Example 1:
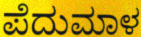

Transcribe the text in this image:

ಪೆದುಮಾಳ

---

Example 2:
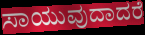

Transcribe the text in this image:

ಸಾಯುವುದಾದರೆ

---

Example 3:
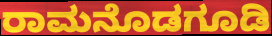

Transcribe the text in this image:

ರಾಮನೊಡಗೂಡಿ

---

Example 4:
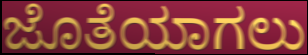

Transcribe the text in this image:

ಜೊತೆಯಾಗಲು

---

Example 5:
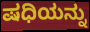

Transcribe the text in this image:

ಷಧಿಯನ್ನು